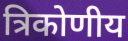
त्रिकोणीय